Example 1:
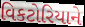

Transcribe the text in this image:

વિકટોરિયાને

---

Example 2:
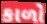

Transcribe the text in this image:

કાળો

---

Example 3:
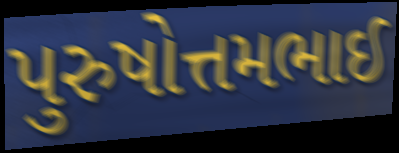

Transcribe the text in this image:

પુરુષોત્તમભાઈ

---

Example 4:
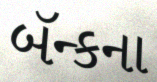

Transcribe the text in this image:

બૅન્કના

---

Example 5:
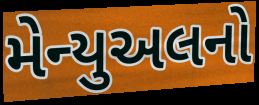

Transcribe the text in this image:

મેન્યુઅલનો